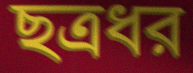
ছত্রধর